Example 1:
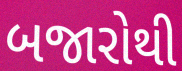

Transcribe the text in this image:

બજારોથી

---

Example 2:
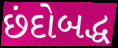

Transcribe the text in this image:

છંદોબદ્ધ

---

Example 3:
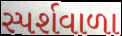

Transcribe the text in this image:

સ્પર્શવાળા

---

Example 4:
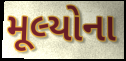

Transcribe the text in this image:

મૂલ્યોના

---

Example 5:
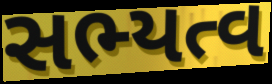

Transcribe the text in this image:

સભ્યત્વ